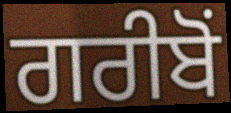
ਗਰੀਬੋਂ